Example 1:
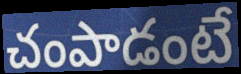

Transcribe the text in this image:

చంపాడంటే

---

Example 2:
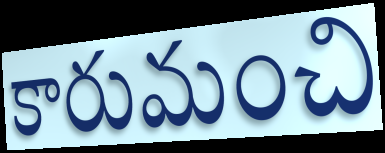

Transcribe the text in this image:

కారుమంచి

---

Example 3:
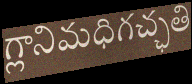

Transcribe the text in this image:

గ్లానిమధిగచ్ఛతి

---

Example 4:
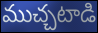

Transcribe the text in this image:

ముచ్చటాడి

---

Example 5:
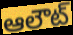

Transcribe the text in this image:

ఆలౌట్